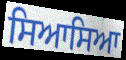
ਸਿਆਸਿਆ